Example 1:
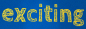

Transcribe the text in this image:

exciting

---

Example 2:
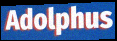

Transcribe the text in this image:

Adolphus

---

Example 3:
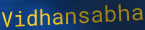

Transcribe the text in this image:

Vidhansabha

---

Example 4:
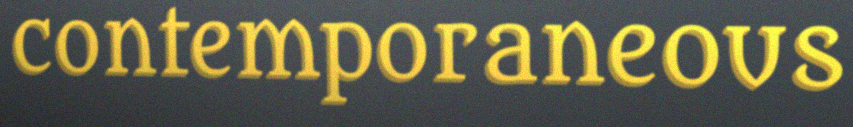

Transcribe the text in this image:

contemporaneous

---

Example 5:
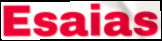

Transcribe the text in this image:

Esaias